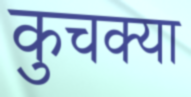
कुचक्या